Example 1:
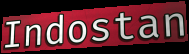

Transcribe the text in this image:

Indostan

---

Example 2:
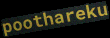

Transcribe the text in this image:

poothareku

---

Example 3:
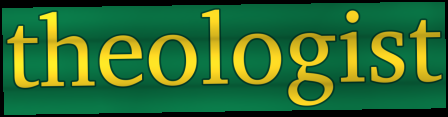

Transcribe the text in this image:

theologist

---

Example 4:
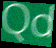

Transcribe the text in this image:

Qd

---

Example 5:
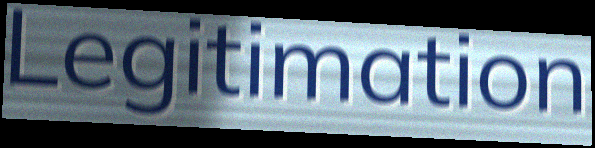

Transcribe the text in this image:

Legitimation